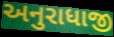
અનુરાધાજી